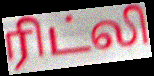
ரிட்லி